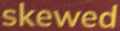
skewed